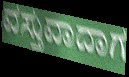
ವಸ್ತುವಾದಾಗ